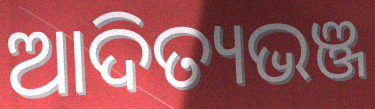
ଆଦିତ୍ୟଭଞ୍ଜ